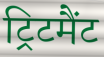
ट्रिटमैंट